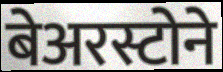
बेअरस्टोने